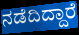
ನಡೆದಿದ್ದಾರೆ